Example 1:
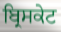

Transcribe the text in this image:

ਬ੍ਰਿਸਕੇਟ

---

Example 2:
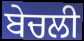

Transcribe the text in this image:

ਬੇਚਲੀ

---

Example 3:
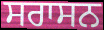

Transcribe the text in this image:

ਸਰਾਸਨ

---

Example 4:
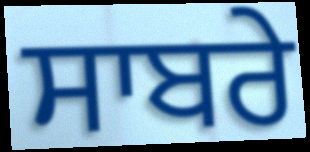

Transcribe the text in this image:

ਸਾਬਰੇ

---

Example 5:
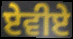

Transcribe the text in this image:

ਏਵੀਏ